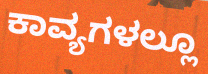
ಕಾವ್ಯಗಳಲ್ಲೂ